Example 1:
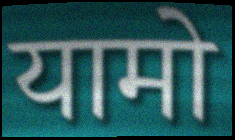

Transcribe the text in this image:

यामो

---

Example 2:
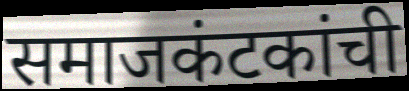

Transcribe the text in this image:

समाजकंटकांची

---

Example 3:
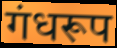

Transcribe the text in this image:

गंधरूप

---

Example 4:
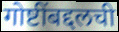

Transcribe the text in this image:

गोष्टींबद्दलची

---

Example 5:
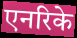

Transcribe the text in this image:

एनरिके